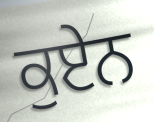
ਕੁਏਨ